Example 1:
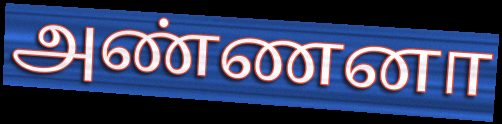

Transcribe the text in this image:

அண்ணனா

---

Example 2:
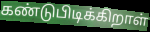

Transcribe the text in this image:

கண்டுபிடிக்கிறாள்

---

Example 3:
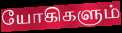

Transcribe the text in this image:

யோகிகளும்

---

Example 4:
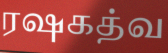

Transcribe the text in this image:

ரஷகத்வ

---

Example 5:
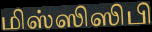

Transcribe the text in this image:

மிஸ்ஸிஸிபி